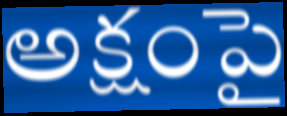
అక్షంపై